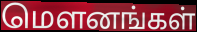
மௌனங்கள்